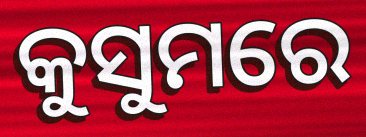
କୁସୁମରେ